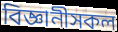
বিজ্ঞানীসকল